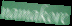
namakore